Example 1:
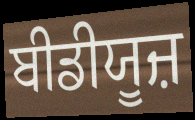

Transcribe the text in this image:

ਬੀਡੀਯੂਜ਼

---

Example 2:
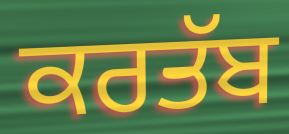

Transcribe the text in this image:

ਕਰਤੱਬ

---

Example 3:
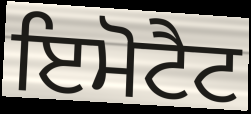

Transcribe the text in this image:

ਇਮੋਟੈਟ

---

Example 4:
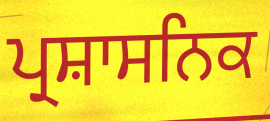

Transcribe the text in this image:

ਪ੍ਰਸ਼ਾਸਨਿਕ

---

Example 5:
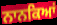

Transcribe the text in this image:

ਨਾਨਕਿਆਂ